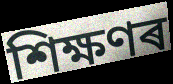
শিক্ষণৰ